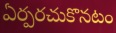
ఏర్పరచుకొనటం